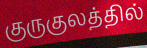
குருகுலத்தில்